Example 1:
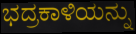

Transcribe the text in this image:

ಭದ್ರಕಾಳಿಯನ್ನು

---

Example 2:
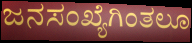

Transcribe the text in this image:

ಜನಸಂಖ್ಯೆಗಿಂತಲೂ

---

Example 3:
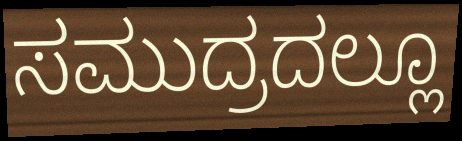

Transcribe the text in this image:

ಸಮುದ್ರದಲ್ಲೂ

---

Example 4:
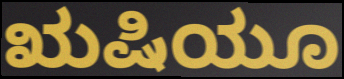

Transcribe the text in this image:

ಋಷಿಯೂ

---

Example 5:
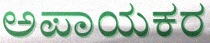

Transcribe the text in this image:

ಅಪಾಯಕರ